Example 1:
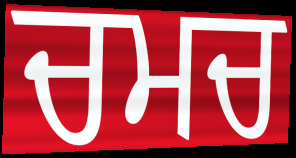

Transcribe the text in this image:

ਚਮਚ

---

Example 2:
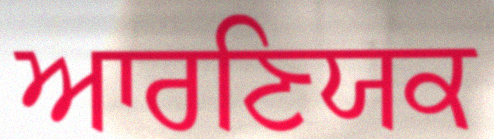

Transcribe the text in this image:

ਆਰਣਿਯਕ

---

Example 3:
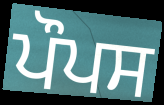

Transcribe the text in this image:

ਪੌਪਸ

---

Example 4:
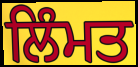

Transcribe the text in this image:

ਲਿੰਮਤ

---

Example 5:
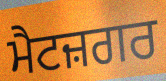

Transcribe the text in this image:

ਮੈਟਜ਼ਗਰ